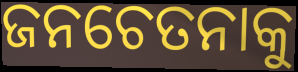
ଜନଚେତନାକୁ